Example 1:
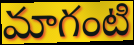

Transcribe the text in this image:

మాగంటి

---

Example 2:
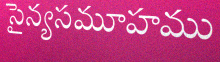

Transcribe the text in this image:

సైన్యసమూహము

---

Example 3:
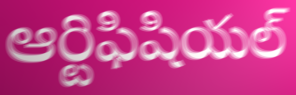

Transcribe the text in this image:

ఆర్టిఫిషియల్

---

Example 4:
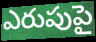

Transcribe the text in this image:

ఎరుపుపై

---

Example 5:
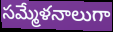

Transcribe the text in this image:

సమ్మేళనాలుగా